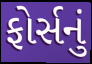
ફોર્સનું